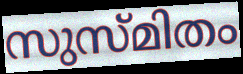
സുസ്മിതം